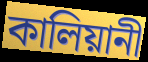
কালিয়ানী